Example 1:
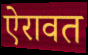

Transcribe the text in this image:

ऐरावत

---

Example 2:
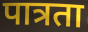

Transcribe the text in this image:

पात्रता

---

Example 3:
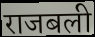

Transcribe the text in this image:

राजबली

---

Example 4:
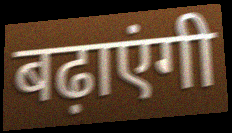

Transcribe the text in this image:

बढ़ाएंगी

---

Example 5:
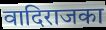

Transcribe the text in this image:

वादिराजका